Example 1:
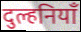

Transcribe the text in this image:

दुल्हनियाँ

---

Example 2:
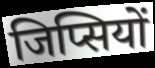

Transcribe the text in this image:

जिप्सियों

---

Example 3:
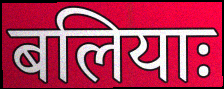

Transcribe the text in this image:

बलियाः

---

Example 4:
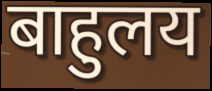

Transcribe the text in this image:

बाहुलय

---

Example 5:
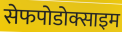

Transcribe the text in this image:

सेफपोडोक्साइम